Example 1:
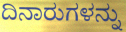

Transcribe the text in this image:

ದಿನಾರುಗಳನ್ನು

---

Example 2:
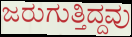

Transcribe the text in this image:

ಜರುಗುತ್ತಿದ್ದವು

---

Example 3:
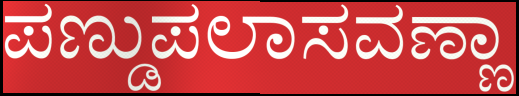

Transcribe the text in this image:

ಪಣ್ಡುಪಲಾಸವಣ್ಣಾ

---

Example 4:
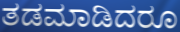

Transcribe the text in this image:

ತಡಮಾಡಿದರೂ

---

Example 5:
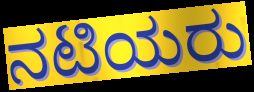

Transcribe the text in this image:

ನಟಿಯರು